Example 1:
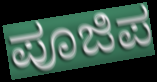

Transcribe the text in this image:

ಪೂಜಿಪ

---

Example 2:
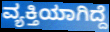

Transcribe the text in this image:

ವ್ಯಕ್ತಿಯಾಗಿದ್ದೆ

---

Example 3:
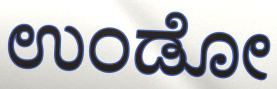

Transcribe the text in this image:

ಉಂಡೋ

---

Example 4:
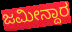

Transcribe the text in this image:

ಜಮೀನ್ದಾರ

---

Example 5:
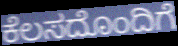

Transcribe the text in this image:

ಕೆಲಸದೊಂದಿಗೆ